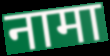
नामा